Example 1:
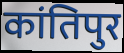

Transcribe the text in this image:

कांतिपुर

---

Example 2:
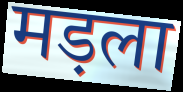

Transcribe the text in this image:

मड़ला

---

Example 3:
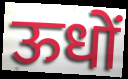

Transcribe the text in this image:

ऊधों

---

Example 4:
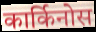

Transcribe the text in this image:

कार्किनोस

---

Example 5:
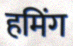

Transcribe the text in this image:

हमिंग